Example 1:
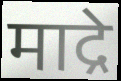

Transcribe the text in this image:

माद्रे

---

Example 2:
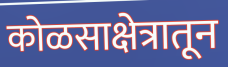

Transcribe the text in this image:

कोळसाक्षेत्रातून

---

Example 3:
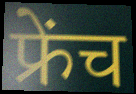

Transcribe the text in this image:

फ्रेंच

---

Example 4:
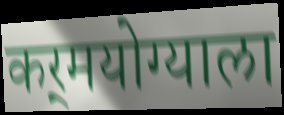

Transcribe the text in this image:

कर्मयोग्याला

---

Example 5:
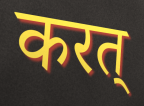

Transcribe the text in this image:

करत्